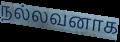
நல்லவனாக